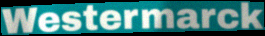
Westermarck